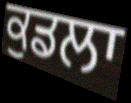
ਕੁਡਲਾ